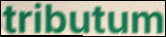
tributum